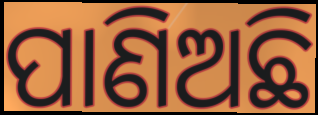
ପାଣିଅଛି